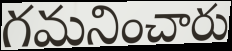
గమనించారు